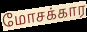
மோசக்கார